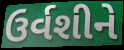
ઉર્વશીને